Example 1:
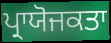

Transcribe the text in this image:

ਪ੍ਰਾਯੋਜਕਤਾ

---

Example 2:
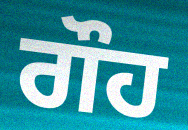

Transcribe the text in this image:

ਗੌਹ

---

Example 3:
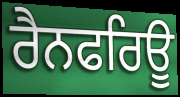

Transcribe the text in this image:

ਰੈਨਫਰਿਊ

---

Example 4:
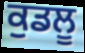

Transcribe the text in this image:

ਕੁਡਲੂ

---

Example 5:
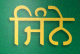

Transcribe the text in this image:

ਜਿੰਨੇ